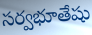
సర్వభూతేషు